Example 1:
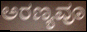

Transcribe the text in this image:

ಅರಣ್ಯವೂ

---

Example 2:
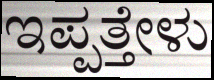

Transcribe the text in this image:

ಇಪ್ಪತ್ತೇಳು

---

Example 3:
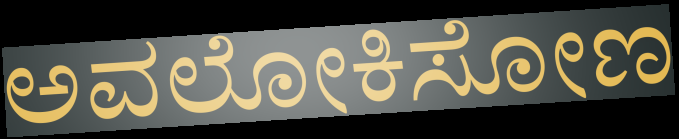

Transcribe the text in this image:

ಅವಲೋಕಿಸೋಣ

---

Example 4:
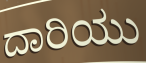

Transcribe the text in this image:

ದಾರಿಯು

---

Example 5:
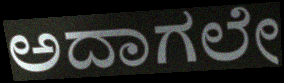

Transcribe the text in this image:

ಅದಾಗಲೇ